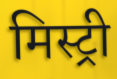
मिस्ट्री